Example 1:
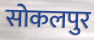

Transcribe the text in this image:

सोकलपुर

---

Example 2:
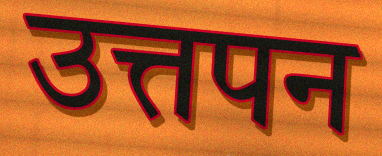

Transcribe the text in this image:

उत्तपन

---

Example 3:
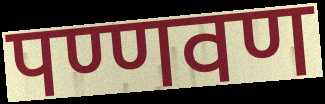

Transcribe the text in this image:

पण्णवण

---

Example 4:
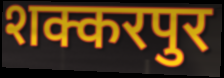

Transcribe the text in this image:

शक्करपुर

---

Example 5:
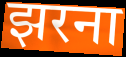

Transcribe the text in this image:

झरना